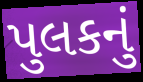
પુલકનું